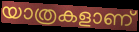
യാത്രകളാണ്